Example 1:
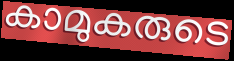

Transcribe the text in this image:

കാമുകരുടെ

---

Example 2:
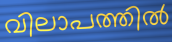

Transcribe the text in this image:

വിലാപത്തിൽ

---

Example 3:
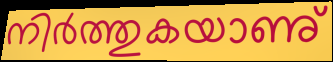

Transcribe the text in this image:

നിർത്തുകയാണു്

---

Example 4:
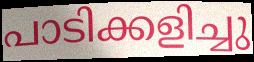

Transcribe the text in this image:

പാടിക്കളിച്ചു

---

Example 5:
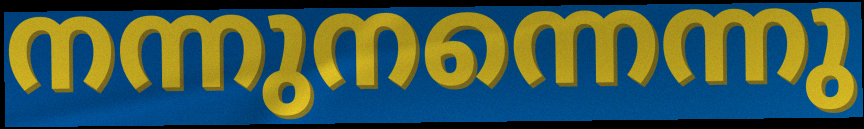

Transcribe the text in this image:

നന്നുനന്നെന്നു